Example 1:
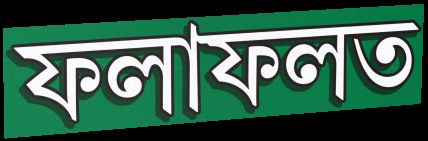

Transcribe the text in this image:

ফলাফলত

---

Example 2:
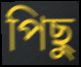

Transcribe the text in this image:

পিছু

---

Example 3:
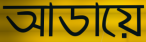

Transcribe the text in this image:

আডায়ে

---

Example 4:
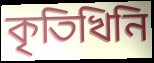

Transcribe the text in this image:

কৃতিখিনি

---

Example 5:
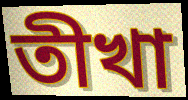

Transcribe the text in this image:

তীখা